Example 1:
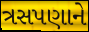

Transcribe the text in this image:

ત્રસપણાને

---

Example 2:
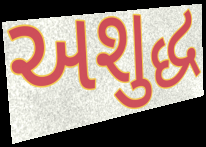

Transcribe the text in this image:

અશુદ્ધ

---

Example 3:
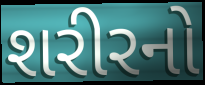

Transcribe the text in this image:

શરીરનો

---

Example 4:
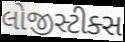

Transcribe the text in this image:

લોજીસ્ટીક્સ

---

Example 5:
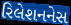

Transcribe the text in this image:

રિલેશનનેસ